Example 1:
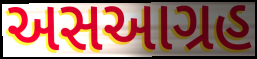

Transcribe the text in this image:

અસઆગ્રહ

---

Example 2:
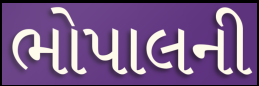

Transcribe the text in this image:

ભોપાલની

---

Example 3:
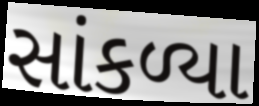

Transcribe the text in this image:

સાંકળ્યા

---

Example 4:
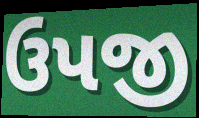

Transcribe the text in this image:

ઉપજી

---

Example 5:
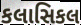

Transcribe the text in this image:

કલાસિકલ